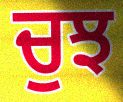
ਚੁਝ